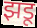
झडू